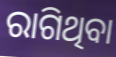
ରାଗିଥିବା